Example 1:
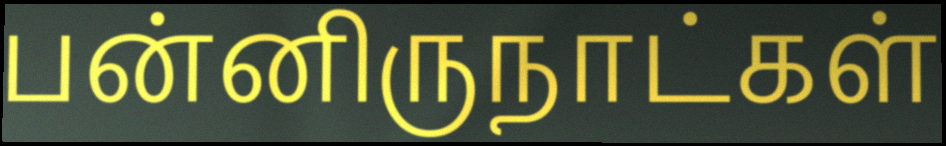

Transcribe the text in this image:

பன்னிருநாட்கள்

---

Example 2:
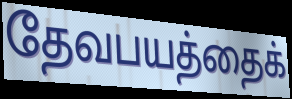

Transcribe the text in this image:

தேவபயத்தைக்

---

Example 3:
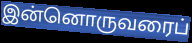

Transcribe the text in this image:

இன்னொருவரைப்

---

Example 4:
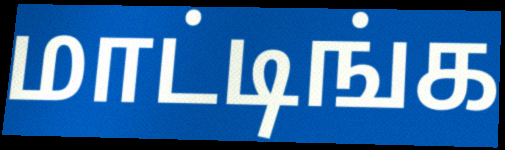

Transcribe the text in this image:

மாட்டிங்க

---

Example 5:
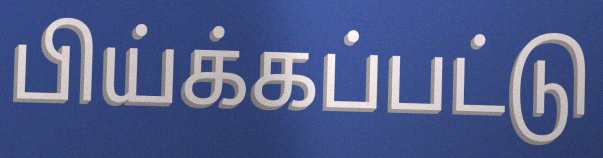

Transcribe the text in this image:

பிய்க்கப்பட்டு